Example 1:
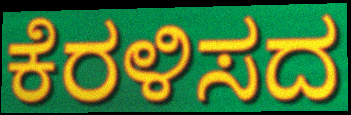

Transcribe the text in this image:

ಕೆರಳಿಸದ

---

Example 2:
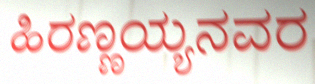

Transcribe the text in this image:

ಹಿರಣ್ಣಯ್ಯನವರ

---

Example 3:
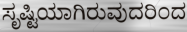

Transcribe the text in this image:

ಸೃಷ್ಟಿಯಾಗಿರುವುದರಿಂದ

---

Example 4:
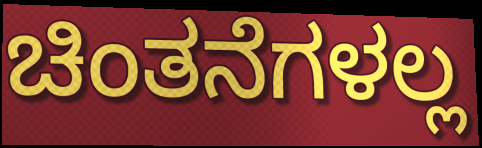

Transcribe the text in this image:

ಚಿಂತನೆಗಳಲ್ಲ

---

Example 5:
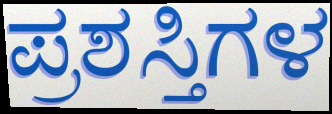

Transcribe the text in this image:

ಪ್ರಶಸ್ತಿಗಳ